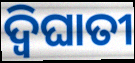
ଦ୍ବିଘାତୀ